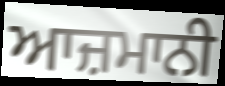
ਆਜ਼ਮਾਨੀ